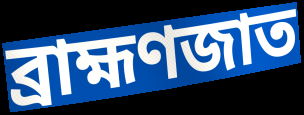
ব্রাহ্মণজাত